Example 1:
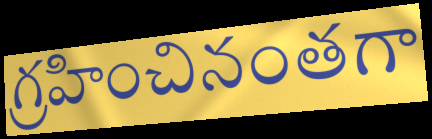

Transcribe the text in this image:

గ్రహించినంతగా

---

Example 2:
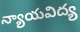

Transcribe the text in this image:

న్యాయవిద్య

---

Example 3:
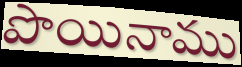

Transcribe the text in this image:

పొయినాము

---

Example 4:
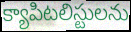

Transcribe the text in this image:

క్యాపిటలిస్టులను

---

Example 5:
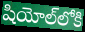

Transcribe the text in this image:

షియోల్‌లోకి